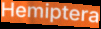
Hemiptera